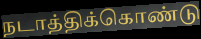
நடாத்திக்கொண்டு